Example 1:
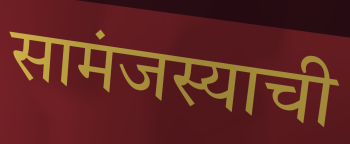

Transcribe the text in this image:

सामंजस्याची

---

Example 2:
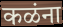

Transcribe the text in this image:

कळंना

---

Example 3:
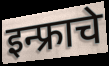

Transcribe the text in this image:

इन्फ्राचे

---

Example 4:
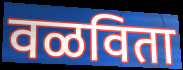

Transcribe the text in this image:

वळविता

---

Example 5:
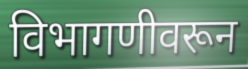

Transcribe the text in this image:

विभागणीवरून